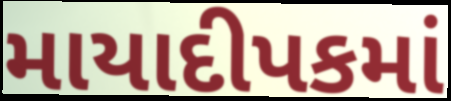
માયાદીપકમાં